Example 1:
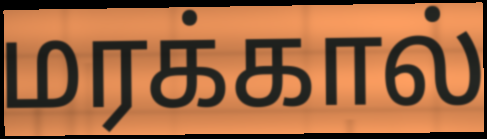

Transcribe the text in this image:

மரக்கால்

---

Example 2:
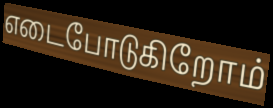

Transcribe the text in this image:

எடைபோடுகிறோம்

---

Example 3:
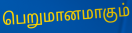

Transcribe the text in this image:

பெறுமானமாகும்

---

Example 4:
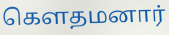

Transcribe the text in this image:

கெளதமனார்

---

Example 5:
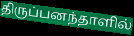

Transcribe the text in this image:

திருப்பனந்தாளில்